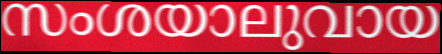
സംശയാലുവായ